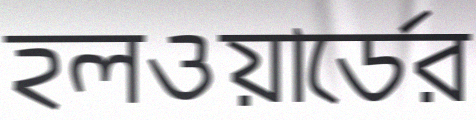
হলওয়ার্ডের